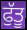
ਫੁੱਤੂ